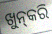
ଖୁନ୍‍କରି